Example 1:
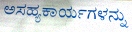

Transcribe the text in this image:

ಅಸಹ್ಯಕಾರ್ಯಗಳನ್ನು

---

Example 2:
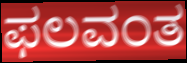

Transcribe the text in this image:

ಫಲವಂತ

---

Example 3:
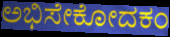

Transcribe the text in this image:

ಅಭಿಸೇಕೋದಕಂ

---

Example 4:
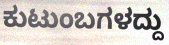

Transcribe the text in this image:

ಕುಟುಂಬಗಳದ್ದು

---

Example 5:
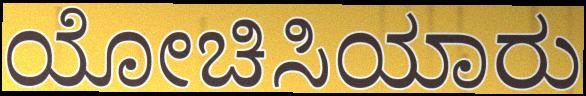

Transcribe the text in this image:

ಯೋಚಿಸಿಯಾರು